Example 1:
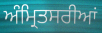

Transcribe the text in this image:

ਅੰਮ੍ਰਿਤਸਰੀਆਂ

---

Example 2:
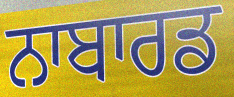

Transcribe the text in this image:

ਨਾਬਾਰਡ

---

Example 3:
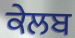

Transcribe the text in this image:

ਕੇਲਬ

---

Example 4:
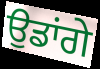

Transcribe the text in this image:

ਉਡਾਂਗੇ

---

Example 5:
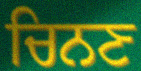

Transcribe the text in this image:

ਚਿਨਣ